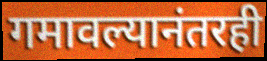
गमावल्यानंतरही